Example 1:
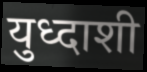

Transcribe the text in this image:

युध्दाशी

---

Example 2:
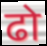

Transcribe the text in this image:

ढो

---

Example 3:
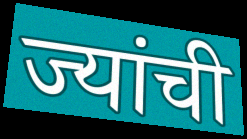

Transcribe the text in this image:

ज्यांची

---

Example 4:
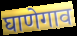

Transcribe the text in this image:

घाणेगाव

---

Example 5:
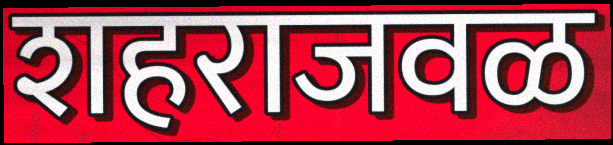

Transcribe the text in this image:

शहराजवळ